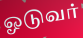
ஓடுவர்